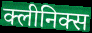
क्लीनिक्स